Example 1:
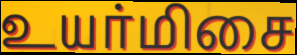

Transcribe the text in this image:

உயர்மிசை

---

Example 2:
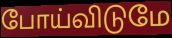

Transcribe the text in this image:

போய்விடுமே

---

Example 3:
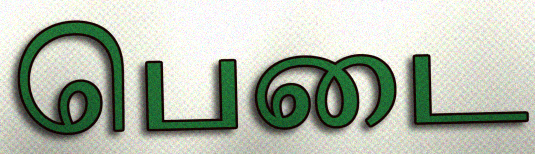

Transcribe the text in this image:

பெடை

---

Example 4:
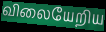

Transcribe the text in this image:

விலையேறிய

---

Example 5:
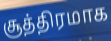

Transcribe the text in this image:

சூத்திரமாக